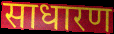
साधारण